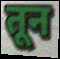
तून